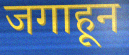
जगाहून